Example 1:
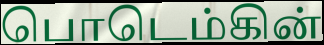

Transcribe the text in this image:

பொடெம்கின்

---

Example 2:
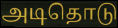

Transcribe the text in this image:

அடிதொடு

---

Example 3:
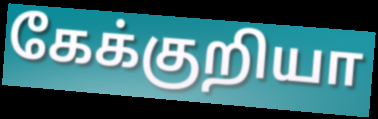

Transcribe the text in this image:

கேக்குறியா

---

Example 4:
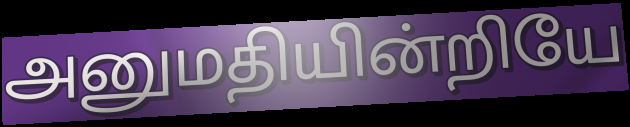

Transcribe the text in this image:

அனுமதியின்றியே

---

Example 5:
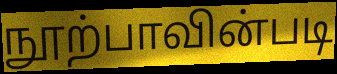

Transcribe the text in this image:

நூற்பாவின்படி